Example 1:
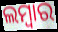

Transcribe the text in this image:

ଲମ୍ୱାର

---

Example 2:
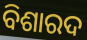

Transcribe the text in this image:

ବିଶାରଦ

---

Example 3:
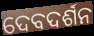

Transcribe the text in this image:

ଦେବଦର୍ଶନ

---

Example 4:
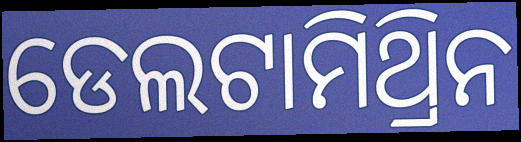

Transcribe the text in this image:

ଡେଲଟାମିଥ୍ରିନ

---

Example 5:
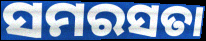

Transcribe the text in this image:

ସମରସତା